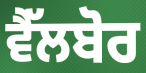
ਵੈੱਲਬੋਰ